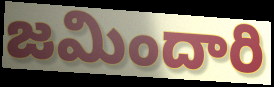
జమిందారి